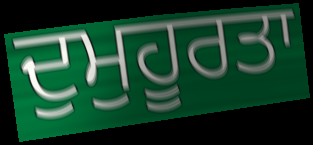
ਦੁਮੁਹੂਰਤਾ